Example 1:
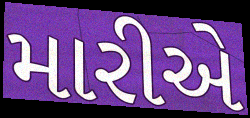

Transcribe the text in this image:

મારીએ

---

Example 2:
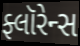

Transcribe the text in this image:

ફ્લૉરેન્સ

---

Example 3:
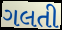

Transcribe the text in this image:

ગલતી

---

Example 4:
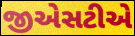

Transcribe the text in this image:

જીએસટીએ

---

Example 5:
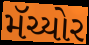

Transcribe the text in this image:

મૅચ્યોર